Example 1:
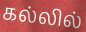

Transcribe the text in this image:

கல்லில்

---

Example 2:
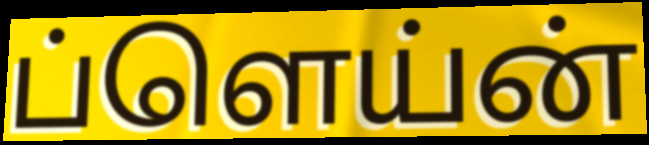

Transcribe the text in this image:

ப்ளெய்ன்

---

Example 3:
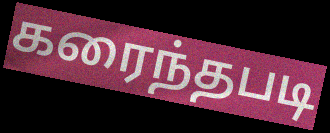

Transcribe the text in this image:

கரைந்தபடி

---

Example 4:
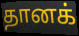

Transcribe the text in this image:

தானக்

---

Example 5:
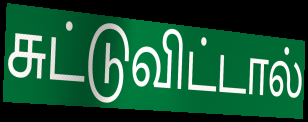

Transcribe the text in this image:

சுட்டுவிட்டால்